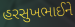
હરસુખભાઈને